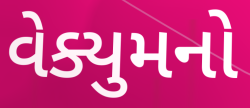
વેક્યુમનો